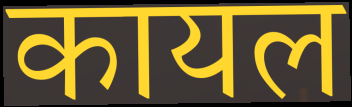
कायल